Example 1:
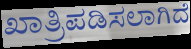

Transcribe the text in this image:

ಖಾತ್ರಿಪಡಿಸಲಾಗಿದೆ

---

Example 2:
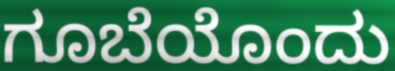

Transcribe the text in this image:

ಗೂಬೆಯೊಂದು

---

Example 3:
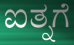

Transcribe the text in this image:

ಐತ್ನಗೆ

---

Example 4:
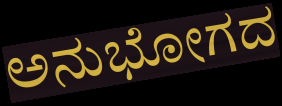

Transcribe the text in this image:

ಅನುಭೋಗದ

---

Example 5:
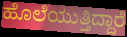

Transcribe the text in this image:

ಹೊಲೆಯುತ್ತಿದ್ದಾರೆ